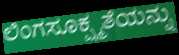
ಲಿಂಗಸೂಕ್ಷ್ಮತೆಯನ್ನು